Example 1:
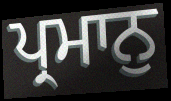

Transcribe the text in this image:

ਪ੍ਰਮਾਨੁ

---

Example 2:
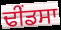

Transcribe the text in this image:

ਢੀੰਂਡਸਾ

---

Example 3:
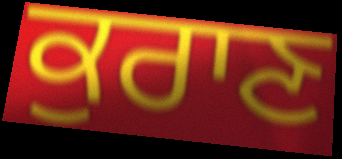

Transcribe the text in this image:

ਕੁਰਾਣ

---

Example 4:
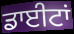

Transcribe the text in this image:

ਡਾਈਟਾਂ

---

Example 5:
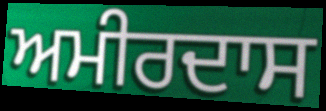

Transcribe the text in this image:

ਅਮੀਰਦਾਸ